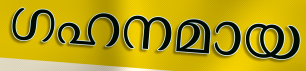
ഗഹനമായ